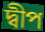
দ্বীপ